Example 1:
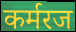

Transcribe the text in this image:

कर्मरज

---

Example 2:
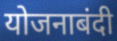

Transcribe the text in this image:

योजनाबंदी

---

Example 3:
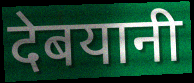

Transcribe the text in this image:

देबयानी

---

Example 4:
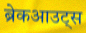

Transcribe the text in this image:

ब्रेकआउट्स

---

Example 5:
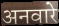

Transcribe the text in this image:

अनवारे